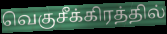
வெகுசீக்கிரத்தில்